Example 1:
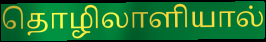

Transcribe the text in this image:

தொழிலாளியால்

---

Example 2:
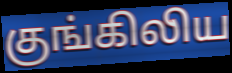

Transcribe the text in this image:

குங்கிலிய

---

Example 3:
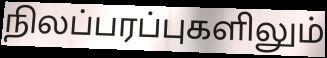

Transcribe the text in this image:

நிலப்பரப்புகளிலும்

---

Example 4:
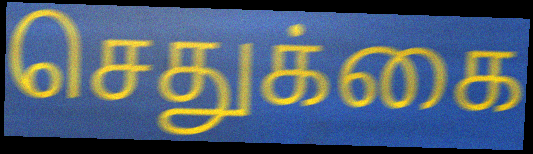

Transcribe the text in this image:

செதுக்கை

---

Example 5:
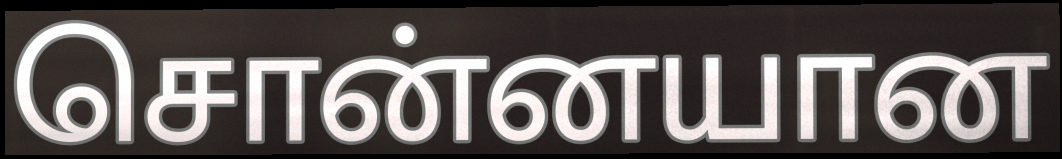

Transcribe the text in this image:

சொன்னயான